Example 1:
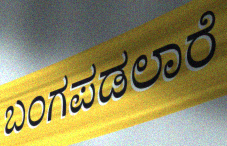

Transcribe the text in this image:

ಬಂಗಪಡಲಾರೆ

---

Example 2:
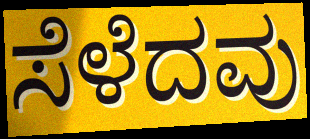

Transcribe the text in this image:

ಸೆಳೆದವು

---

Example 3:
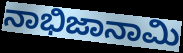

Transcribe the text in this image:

ನಾಭಿಜಾನಾಮಿ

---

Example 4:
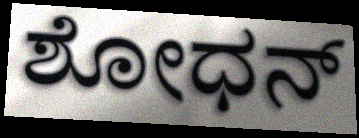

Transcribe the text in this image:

ಶೋಧನ್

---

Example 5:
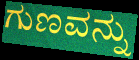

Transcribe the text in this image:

ಗುಣವನ್ನು